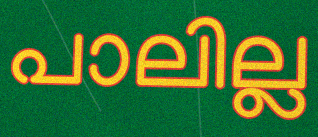
പാലില്ല